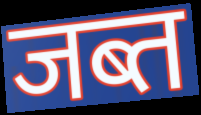
जब्त